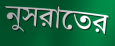
নুসরাতের